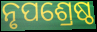
ନୃପଶ୍ରେଷ୍ଠ